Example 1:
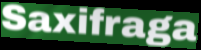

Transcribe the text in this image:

Saxifraga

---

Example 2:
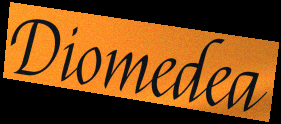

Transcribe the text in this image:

Diomedea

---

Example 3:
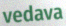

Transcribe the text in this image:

vedava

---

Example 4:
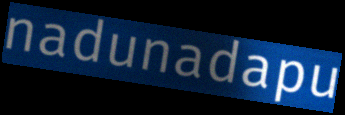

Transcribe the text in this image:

nadunadapu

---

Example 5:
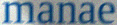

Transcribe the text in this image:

manae